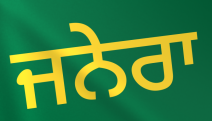
ਜਨੇਰਾ